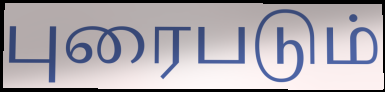
புரைபடும்